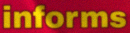
informs